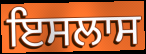
ਇਸਲਾਸ